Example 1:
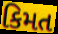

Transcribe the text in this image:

કિમત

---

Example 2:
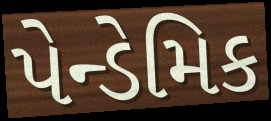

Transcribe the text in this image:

પેન્ડેમિક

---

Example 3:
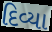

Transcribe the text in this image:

દિવ્યા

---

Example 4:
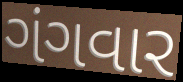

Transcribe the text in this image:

ગંગવાર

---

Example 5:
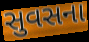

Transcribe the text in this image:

સુવસના